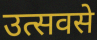
उत्सवसे